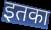
इतका